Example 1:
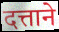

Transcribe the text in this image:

दत्ताने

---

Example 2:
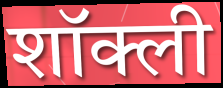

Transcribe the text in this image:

शॉक्ली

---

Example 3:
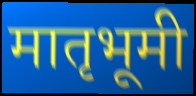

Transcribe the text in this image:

मातृभूमी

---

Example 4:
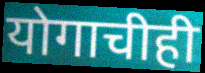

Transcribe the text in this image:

योगाचीही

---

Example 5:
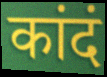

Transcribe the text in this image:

कांदं